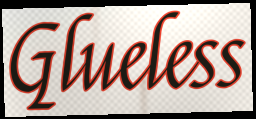
Glueless